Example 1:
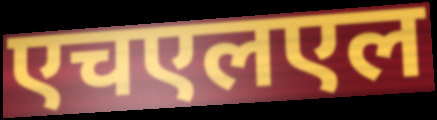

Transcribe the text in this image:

एचएलएल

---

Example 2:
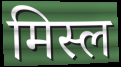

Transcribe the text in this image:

मिस्ल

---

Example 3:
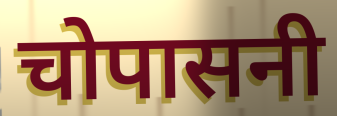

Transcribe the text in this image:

चोपासनी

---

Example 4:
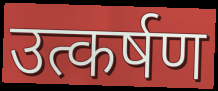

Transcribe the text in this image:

उत्कर्षण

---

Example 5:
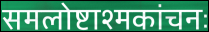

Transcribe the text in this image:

समलोष्टाश्मकांचनः